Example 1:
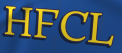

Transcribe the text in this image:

HFCL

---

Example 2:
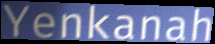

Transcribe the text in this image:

Yenkanah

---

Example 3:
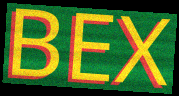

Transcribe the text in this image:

BEX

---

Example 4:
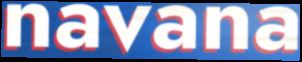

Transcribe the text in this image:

navana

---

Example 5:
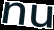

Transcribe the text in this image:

nu